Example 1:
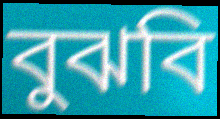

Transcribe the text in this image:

বুঝবি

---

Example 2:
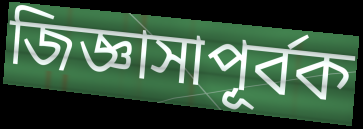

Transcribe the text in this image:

জিজ্ঞাসাপূর্বক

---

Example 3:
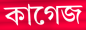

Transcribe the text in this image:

কাগেজ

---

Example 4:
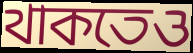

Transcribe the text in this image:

থাকতেও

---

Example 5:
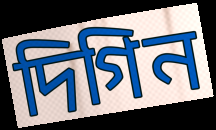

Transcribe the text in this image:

দিগিন